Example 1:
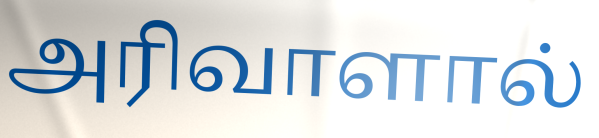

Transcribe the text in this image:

அரிவாளால்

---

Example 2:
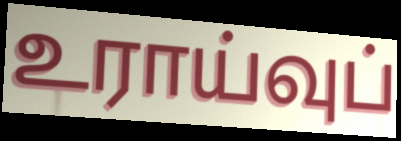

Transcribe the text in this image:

உராய்வுப்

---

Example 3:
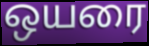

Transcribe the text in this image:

ஒயரை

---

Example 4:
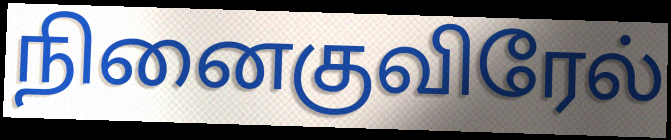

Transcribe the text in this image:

நினைகுவிரேல்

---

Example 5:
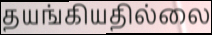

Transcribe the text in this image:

தயங்கியதில்லை